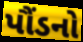
પૌંડનો